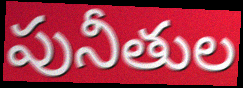
పునీతుల